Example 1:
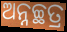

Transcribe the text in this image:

ଅନ୍ନଚ୍ଛତ୍ର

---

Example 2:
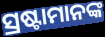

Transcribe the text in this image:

ସ୍ରଷ୍ଟାମାନଙ୍କ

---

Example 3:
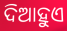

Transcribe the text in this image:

ଦିଆହୁଏ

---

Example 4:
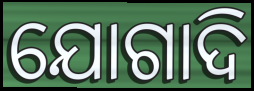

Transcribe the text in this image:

ଯୋଗାଦି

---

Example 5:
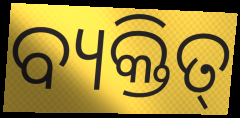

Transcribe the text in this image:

ବ୍ୟକ୍ତିତ୍